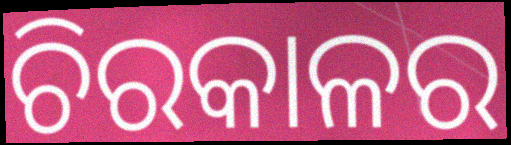
ଚିରକାଳର